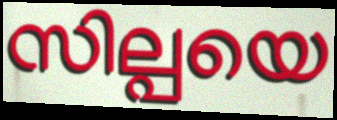
സില്പയെ